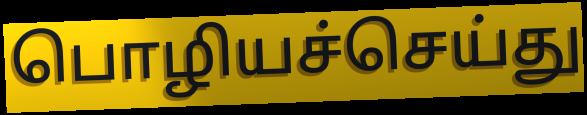
பொழியச்செய்து